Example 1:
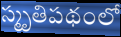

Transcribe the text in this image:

స్మృతిపథంలో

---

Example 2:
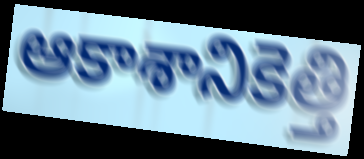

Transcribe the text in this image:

ఆకాశానికెత్తి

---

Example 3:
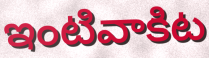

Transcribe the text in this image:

ఇంటివాకిట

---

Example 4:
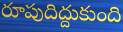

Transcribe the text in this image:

రూపుదిద్దుకుంది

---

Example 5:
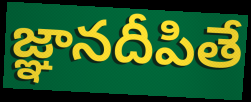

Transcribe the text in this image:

జ్ఞానదీపితే